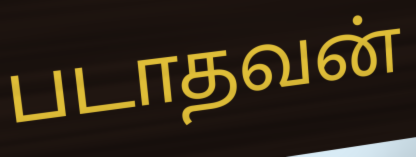
படாதவன்